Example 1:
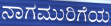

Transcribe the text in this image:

ನಾಗಮುರಿಗೆಯ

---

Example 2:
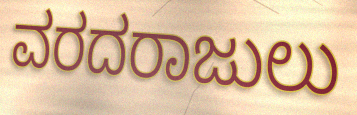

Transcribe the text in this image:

ವರದರಾಜುಲು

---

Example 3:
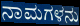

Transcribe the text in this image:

ನಾಮಗಳನು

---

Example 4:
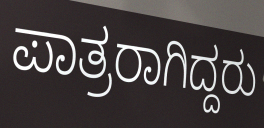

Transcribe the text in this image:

ಪಾತ್ರರಾಗಿದ್ದರು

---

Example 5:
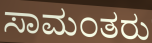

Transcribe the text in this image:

ಸಾಮಂತರು